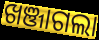
ଖଞ୍ଜାଗଲା